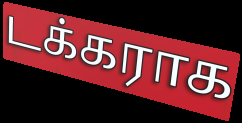
டக்கராக